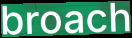
broach